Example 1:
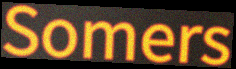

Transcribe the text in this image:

Somers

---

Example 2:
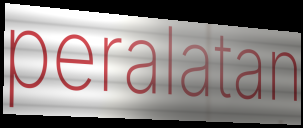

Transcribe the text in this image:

peralatan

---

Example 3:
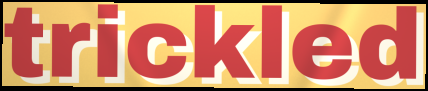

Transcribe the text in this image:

trickled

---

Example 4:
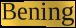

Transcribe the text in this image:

Bening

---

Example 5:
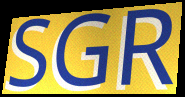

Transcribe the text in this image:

SGR